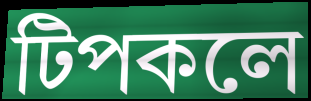
টিপকলে